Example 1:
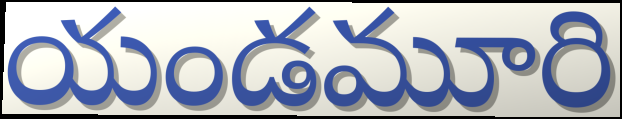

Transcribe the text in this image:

యండమూరి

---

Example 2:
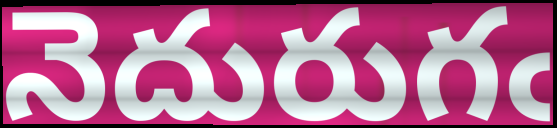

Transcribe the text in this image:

నెదురుగఁ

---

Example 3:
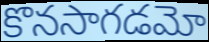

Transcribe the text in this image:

కొనసాగడమో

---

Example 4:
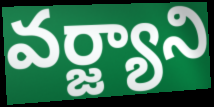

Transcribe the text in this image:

వర్జ్యాని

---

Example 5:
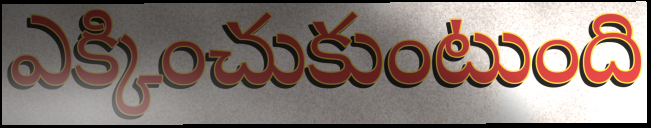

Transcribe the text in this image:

ఎక్కించుకుంటుంది